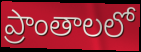
ప్రాంతాలలో